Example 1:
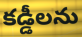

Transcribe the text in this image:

కడ్డీలను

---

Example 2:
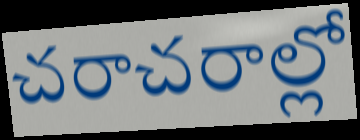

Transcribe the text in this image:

చరాచరాల్లో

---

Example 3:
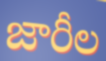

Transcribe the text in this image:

జారీల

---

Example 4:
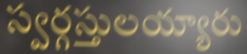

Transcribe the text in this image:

స్వర్గస్తులయ్యారు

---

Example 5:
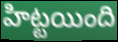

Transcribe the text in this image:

హిట్టయింది